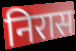
निरास